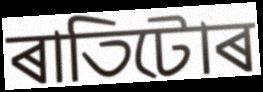
ৰাতিটোৰ